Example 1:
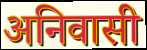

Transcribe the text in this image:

अनिवासी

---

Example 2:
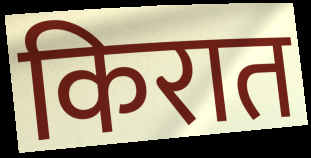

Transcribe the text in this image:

किरात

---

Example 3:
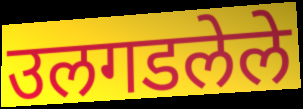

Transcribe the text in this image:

उलगडलेले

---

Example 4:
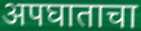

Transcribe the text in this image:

अपघाताचा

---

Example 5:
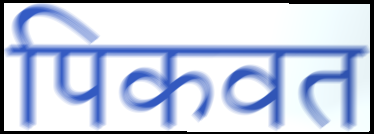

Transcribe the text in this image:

पिकवत